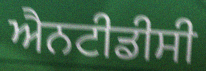
ਐਨਟੀਡੀਸੀ